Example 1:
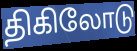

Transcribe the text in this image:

திகிலோடு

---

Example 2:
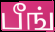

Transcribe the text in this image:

பீங்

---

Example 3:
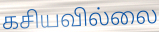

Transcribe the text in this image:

கசியவில்லை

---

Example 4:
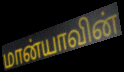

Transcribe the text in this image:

மான்யாவின்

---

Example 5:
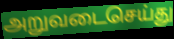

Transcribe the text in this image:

அறுவடைசெய்து